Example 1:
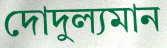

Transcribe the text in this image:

দোদুল্যমান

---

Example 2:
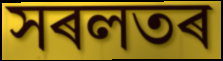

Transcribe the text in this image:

সৰলতৰ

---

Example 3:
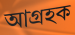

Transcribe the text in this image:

আগ্ৰহক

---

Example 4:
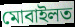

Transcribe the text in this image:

মোবাইলত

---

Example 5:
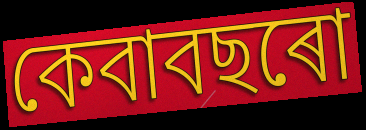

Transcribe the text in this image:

কেবাবছৰো